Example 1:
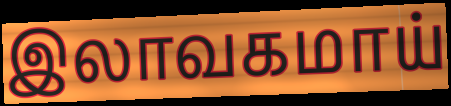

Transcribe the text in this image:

இலாவகமாய்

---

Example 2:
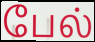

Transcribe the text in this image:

பேல்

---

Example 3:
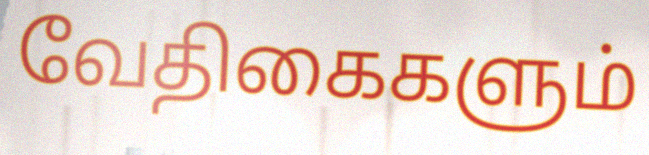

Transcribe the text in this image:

வேதிகைகளும்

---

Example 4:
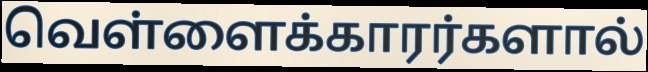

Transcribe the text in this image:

வெள்ளைக்காரர்களால்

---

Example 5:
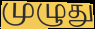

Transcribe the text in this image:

முழுது